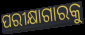
ପରୀକ୍ଷାଗାରକୁ